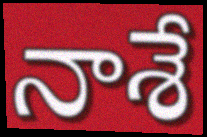
నాశే